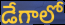
డేగాలో